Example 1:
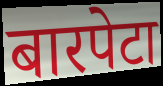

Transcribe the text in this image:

बारपेटा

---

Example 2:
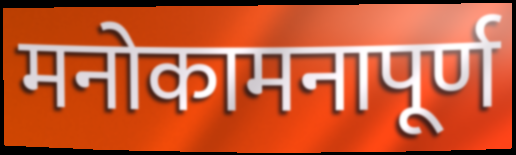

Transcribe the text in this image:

मनोकामनापूर्ण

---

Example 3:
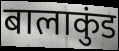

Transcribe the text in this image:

बालाकुंड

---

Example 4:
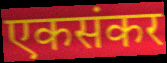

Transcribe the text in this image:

एकसंकर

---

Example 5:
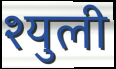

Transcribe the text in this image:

श्युली